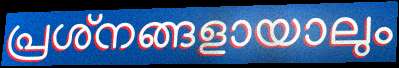
പ്രശ്‌നങ്ങളായാലും